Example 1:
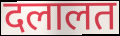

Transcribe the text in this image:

दलालत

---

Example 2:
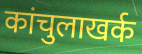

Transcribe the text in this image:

कांचुलाखर्क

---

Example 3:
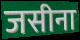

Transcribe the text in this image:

जसीना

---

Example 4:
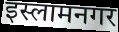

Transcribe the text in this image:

इस्लामनगर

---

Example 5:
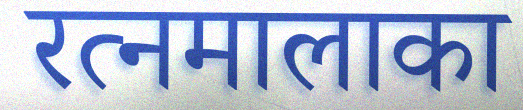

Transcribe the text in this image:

रत्नमालाका